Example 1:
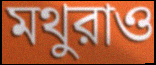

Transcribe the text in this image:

মথুরাও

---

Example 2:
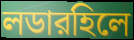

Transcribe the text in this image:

লডারহিলে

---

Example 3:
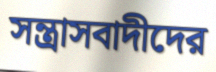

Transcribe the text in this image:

সন্ত্রাসবাদীদের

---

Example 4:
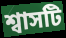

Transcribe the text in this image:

শ্বাসটি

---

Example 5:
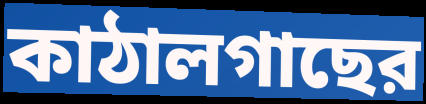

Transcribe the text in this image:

কাঠালগাছের